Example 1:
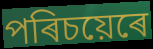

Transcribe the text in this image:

পৰিচয়েৰে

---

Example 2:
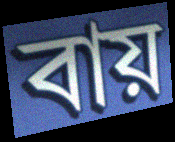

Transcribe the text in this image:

বায়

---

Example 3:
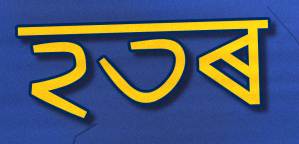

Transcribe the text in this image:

হতৰ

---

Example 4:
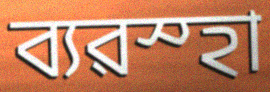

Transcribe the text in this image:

ব্যৱস্হা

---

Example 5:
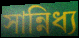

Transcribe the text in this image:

সান্নিধ্য